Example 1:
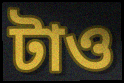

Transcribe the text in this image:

টাও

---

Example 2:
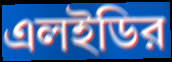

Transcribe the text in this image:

এলইডির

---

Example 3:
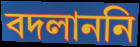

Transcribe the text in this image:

বদলাননি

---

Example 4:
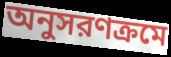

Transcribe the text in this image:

অনুসরণক্রমে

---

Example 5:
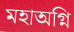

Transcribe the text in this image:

মহাঅগ্নি